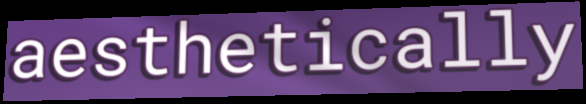
aesthetically